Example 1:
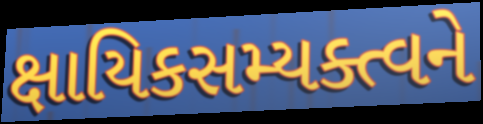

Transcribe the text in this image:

ક્ષાયિકસમ્યક્ત્વને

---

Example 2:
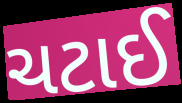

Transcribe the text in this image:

ચટાઈ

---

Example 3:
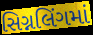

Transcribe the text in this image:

સિગ્નલિંગમાં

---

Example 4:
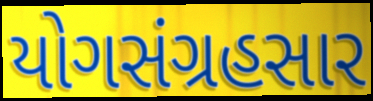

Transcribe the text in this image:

યોગસંગ્રહસાર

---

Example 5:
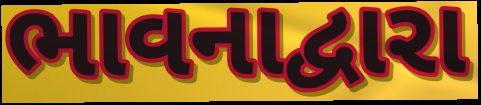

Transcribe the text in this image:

ભાવનાદ્વારા